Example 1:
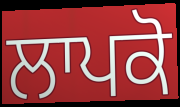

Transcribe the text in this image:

ਲਾਪਕੋ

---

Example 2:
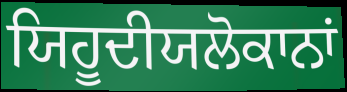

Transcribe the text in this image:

ਯਿਹੂਦੀਯਲੋਕਾਨਾਂ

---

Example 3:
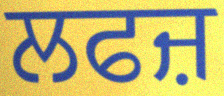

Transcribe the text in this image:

ਲਫਜ਼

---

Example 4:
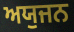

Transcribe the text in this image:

ਅਯੁਜਨ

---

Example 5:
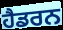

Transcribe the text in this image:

ਹੈਡਰਨ